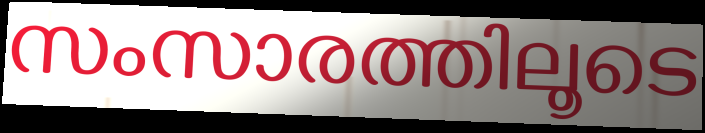
സംസാരത്തിലൂടെ